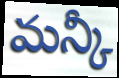
మన్కీ